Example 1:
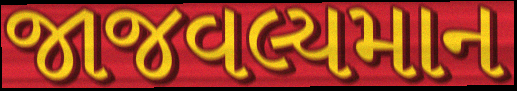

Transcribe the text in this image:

જાજવલ્યમાન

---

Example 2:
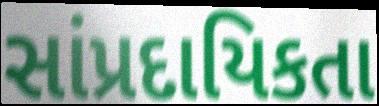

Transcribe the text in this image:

સાંપ્રદાયિકતા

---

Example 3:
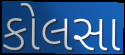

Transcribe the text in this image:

કોલસા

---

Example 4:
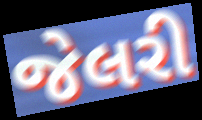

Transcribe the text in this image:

જેલરી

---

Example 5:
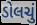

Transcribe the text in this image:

ડોલચું